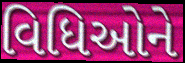
વિધિઓને